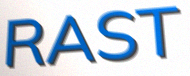
RAST